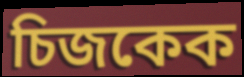
চিজকেক